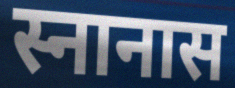
स्नानास